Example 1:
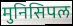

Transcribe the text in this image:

मुनिसिपल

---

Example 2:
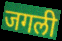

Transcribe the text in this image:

जगली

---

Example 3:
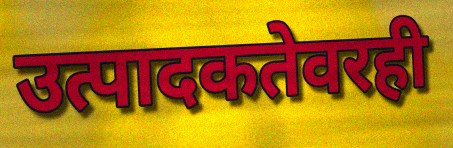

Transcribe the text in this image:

उत्पादकतेवरही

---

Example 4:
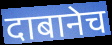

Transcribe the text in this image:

दाबानेच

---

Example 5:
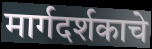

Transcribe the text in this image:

मार्गदर्शकाचे